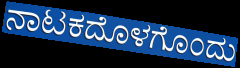
ನಾಟಕದೊಳಗೊಂದು